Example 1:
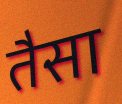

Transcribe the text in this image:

तैसा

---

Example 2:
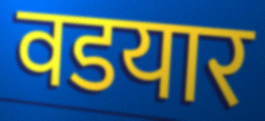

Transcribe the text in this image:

वडयार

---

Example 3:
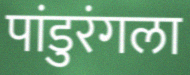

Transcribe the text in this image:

पांडुरंगला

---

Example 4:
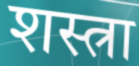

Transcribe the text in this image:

शस्त्रा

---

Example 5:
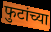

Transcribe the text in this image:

फुटांच्‍या